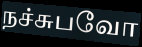
நச்சுபவோ